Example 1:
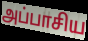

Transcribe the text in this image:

அப்பாசிய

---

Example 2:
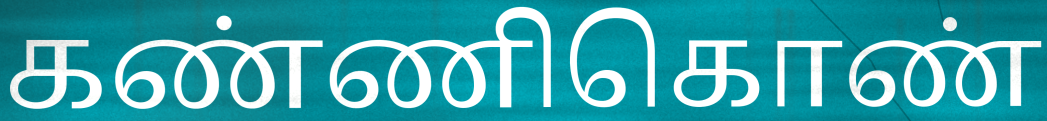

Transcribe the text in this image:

கண்ணிகொண்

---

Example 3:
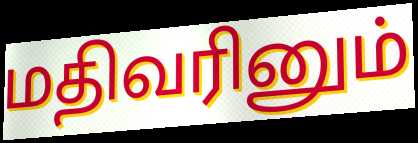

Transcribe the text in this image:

மதிவரினும்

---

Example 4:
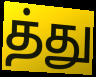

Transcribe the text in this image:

த்து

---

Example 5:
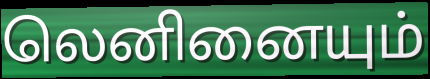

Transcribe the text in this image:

லெனினையும்